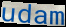
udam